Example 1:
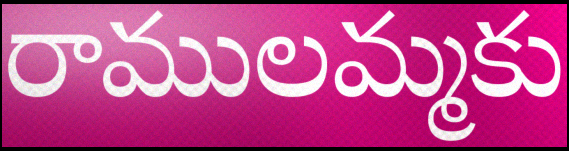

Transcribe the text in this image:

రాములమ్మకు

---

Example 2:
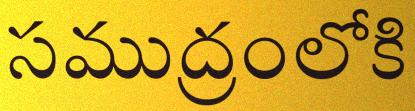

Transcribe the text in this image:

సముద్రంలోకి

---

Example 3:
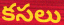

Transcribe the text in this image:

కసలు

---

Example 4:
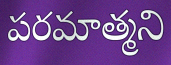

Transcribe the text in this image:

పరమాత్మని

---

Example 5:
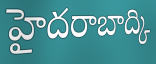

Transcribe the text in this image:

హైదరాబాద్కి